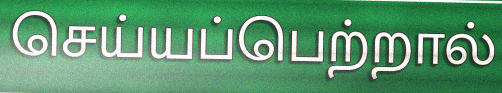
செய்யப்பெற்றால்